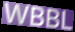
WBBL